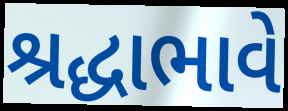
શ્રદ્ધાભાવે